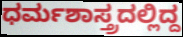
ಧರ್ಮಶಾಸ್ತ್ರದಲ್ಲಿದ್ದ